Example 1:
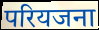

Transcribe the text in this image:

परियजना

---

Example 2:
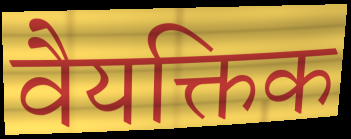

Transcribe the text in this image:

वैयक्तिक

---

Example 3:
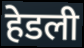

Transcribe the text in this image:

हेडली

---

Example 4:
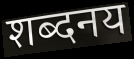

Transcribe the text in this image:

शब्दनय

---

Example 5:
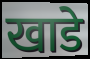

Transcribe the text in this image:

खाडे